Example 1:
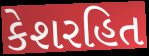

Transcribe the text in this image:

કેશરહિત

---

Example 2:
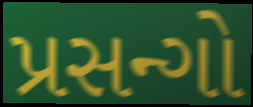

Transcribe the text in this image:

પ્રસન્ગો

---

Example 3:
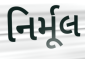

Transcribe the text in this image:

નિર્મૂલ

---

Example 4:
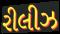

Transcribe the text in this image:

રીલીઝ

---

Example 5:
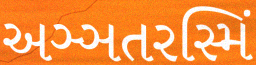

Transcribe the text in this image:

અઞ્ઞતરસ્મિં